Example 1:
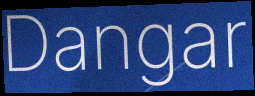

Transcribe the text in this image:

Dangar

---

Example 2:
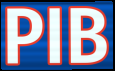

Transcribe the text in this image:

PIB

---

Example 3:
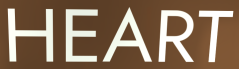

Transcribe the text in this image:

HEART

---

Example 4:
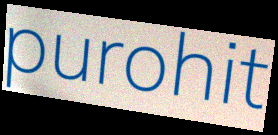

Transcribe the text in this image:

purohit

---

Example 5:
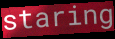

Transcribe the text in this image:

staring